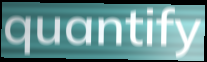
quantify